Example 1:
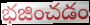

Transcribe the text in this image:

భజించడం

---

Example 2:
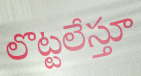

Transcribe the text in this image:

లొట్టలేస్తూ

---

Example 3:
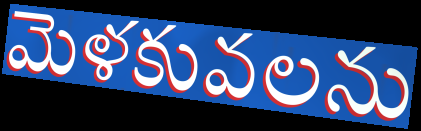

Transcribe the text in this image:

మెళకువలను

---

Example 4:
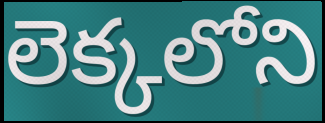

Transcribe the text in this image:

లెక్కలోని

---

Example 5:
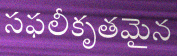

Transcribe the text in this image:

సఫలీకృతమైన